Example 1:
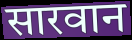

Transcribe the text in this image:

सारवान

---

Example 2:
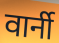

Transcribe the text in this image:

वार्नी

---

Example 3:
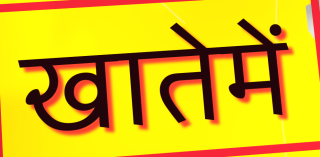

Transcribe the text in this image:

खातेमें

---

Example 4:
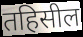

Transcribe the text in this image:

तहिसील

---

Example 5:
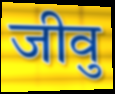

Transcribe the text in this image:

जीवु